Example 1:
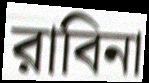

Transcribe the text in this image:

রাবিনা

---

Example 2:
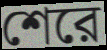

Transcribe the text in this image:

শেরে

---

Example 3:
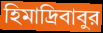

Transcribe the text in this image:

হিমাদ্রিবাবুর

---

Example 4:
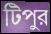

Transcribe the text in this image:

টিপুর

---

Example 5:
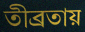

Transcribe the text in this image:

তীব্রতায়